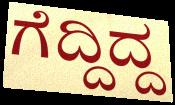
ಗೆದ್ದಿದ್ದ